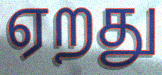
ஏறது